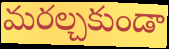
మరల్చకుండా